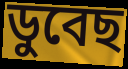
ডুবেছ